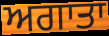
ਅਗਾਤਾ